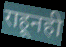
राहूनही